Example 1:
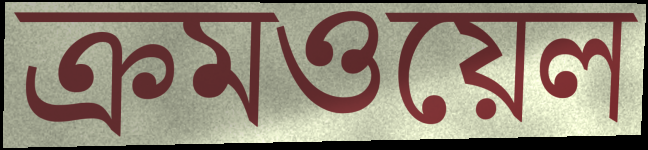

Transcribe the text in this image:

ক্রমওয়েল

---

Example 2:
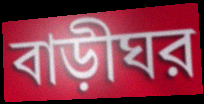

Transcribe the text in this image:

বাড়ীঘর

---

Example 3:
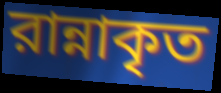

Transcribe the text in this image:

রান্নাকৃত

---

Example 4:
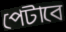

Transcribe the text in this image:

পেটাবে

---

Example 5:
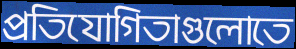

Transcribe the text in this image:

প্রতিযোগিতাগুলোতে